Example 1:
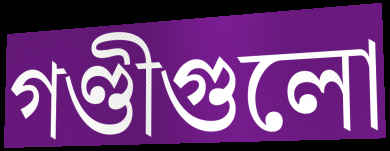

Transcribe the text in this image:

গণ্ডীগুলো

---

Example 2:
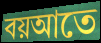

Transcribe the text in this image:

বয়আতে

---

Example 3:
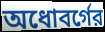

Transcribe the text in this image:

অধোবর্গের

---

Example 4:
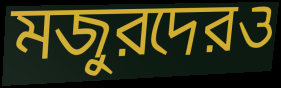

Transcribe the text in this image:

মজুরদেরও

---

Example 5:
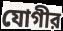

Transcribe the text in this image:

যোগীর